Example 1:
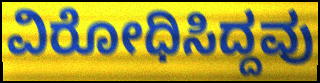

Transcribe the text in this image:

ವಿರೋಧಿಸಿದ್ದವು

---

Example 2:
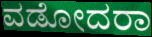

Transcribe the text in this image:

ವಡೋದರಾ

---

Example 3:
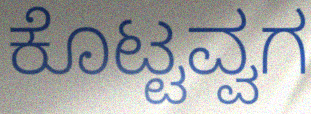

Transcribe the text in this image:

ಕೊಟ್ಟವ್ವಗ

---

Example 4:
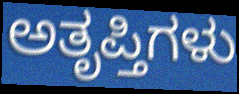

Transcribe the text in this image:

ಅತೃಪ್ತಿಗಳು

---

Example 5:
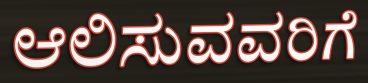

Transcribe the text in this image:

ಆಲಿಸುವವರಿಗೆ